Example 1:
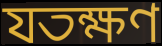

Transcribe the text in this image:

যতক্ষণ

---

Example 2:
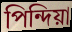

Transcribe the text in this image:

পিন্দিয়া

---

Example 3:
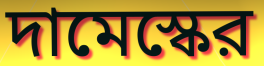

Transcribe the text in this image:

দামেস্কের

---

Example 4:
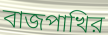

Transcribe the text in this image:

বাজপাখির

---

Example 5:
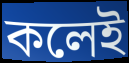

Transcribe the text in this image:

কলেই